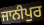
ਜਾਨੀਪੁਰ